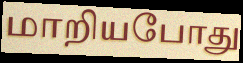
மாறியபோது